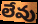
లేవు